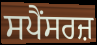
ਸਪੈਂਸਰਜ਼